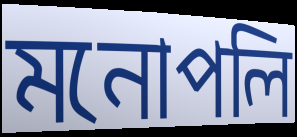
মনোপলি